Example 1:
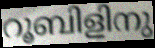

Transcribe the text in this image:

റൂബിളിനു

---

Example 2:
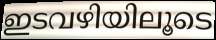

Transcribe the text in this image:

ഇടവഴിയിലൂടെ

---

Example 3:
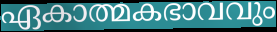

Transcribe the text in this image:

ഏകാത്മകഭാവവും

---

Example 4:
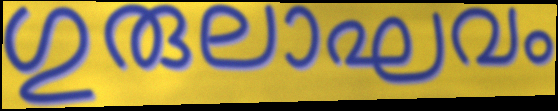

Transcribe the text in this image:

ഗുരുലാഘവം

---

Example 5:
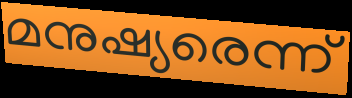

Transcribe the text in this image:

മനുഷ്യരെന്ന്